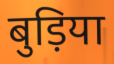
बुड़िया